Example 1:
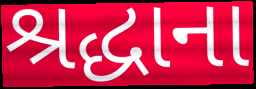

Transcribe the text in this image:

શ્રદ્ધાના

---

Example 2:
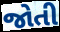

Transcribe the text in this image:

જોતી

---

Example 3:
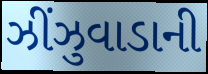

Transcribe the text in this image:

ઝીંઝુવાડાની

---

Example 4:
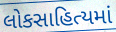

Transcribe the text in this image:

લોકસાહિત્યમાં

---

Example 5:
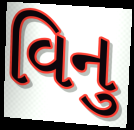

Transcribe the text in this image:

વિનુ